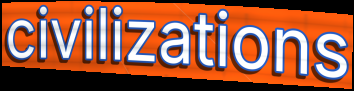
civilizations